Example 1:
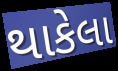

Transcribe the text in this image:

થાકેલા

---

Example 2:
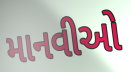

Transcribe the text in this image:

માનવીઓ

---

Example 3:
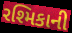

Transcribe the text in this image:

રશ્મિકાની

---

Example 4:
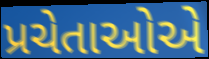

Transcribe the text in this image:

પ્રચેતાઓએ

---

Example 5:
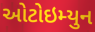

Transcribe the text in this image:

ઓટોઇમ્યુન